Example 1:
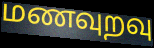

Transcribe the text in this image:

மணவுறவு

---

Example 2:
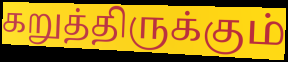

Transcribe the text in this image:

கறுத்திருக்கும்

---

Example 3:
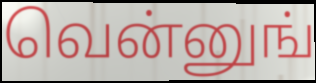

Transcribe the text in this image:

வென்னுங்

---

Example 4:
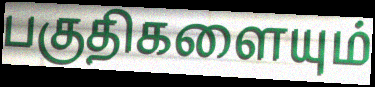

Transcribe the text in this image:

பகுதிகளையும்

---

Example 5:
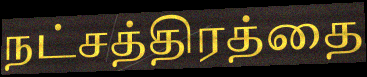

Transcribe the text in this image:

நட்சத்திரத்தை